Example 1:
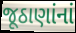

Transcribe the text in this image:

જૂઠાણાંનાં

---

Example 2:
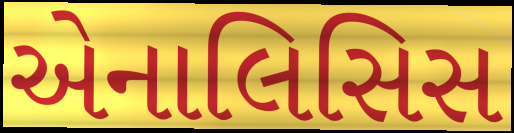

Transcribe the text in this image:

એનાલિસિસ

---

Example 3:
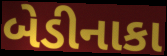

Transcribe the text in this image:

બેડીનાકા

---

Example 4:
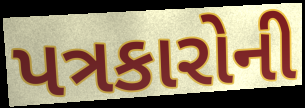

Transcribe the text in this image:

પત્રકારોની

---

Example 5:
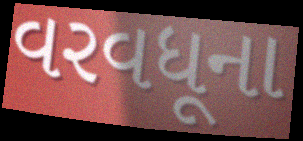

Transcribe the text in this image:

વરવધૂના